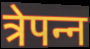
त्रेपन्न